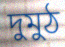
দুমুঠ